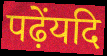
पढ़ेंयदि